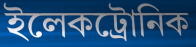
ইলেকট্রোনিক